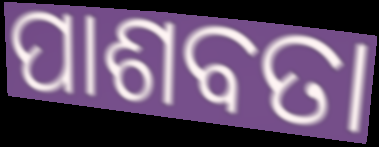
ପାଶବତା